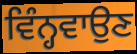
ਵਿੰਨ੍ਹਵਾਉਣ